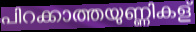
പിറക്കാത്തയുണ്ണികള്